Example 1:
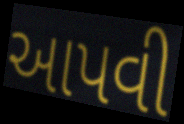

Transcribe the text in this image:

આપવી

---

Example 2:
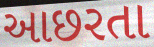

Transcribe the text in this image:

આછરતા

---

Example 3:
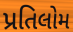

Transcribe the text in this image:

પ્રતિલોમ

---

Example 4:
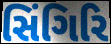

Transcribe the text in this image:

સિંગિરિ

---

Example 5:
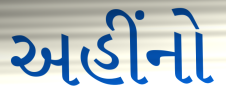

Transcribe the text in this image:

અહીંનો